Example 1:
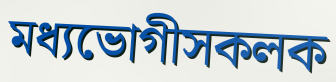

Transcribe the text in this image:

মধ্যভোগীসকলক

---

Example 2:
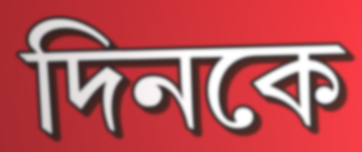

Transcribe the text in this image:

দিনকে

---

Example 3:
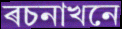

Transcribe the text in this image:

ৰচনাখনে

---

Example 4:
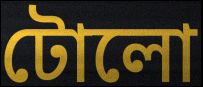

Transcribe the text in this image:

টোলো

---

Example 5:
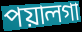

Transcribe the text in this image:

পয়ালগা